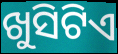
ଖୁସିଟିଏ